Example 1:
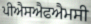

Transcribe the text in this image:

ਪੀਐਸਐਫਐਮਸੀ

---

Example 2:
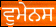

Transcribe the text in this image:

ਵੁਮੇਨਸ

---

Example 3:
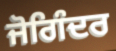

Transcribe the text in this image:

ਜੋਗਿੰਦਰ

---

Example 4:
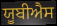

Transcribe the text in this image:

ਯੂਬੀਐਸ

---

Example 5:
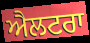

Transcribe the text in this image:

ਐਲਟਰਾ